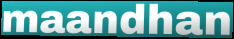
maandhan